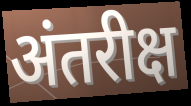
अंतरीक्ष